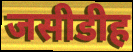
जसीडीह